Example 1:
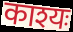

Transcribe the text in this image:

काश्यः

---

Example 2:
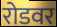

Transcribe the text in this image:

रोडवर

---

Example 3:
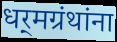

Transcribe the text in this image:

धर्मग्रंथांना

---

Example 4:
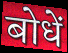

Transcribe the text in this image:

बोधें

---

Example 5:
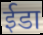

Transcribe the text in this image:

ईडा